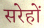
सरेहों